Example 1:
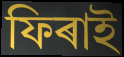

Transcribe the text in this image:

ফিৰাই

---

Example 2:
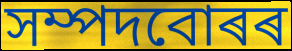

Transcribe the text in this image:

সম্পদবোৰৰ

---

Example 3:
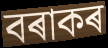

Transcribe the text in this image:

বৰাকৰ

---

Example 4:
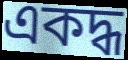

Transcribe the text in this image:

একদ্ধ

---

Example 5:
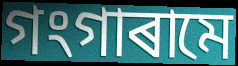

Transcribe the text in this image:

গংগাৰামে